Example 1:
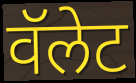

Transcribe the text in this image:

वॅलेट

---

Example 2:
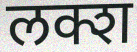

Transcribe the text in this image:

लक्श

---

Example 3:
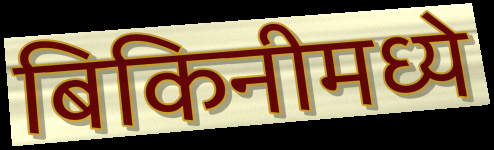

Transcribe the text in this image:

बिकिनीमध्ये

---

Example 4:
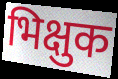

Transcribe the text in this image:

भिक्षुक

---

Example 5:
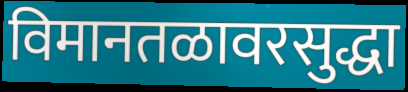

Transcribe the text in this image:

विमानतळावरसुद्धा